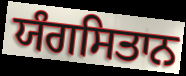
ਯੰਗਸਿਤਾਨ